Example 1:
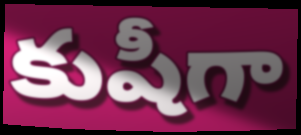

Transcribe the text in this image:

కుషీగా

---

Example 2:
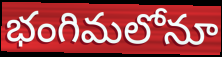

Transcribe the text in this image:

భంగిమలోనూ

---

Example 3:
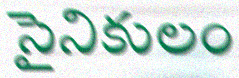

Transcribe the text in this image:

సైనికులం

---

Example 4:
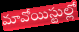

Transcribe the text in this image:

మావోయిస్టుల్లో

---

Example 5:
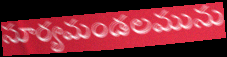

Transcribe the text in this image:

సూర్యమండలమును